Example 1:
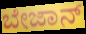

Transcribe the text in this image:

ಬೇಜಾನ್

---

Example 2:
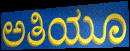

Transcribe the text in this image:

ಅತಿಯೂ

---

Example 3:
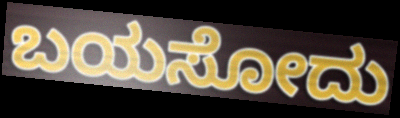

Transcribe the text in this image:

ಬಯಸೋದು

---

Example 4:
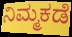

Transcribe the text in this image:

ನಿಮ್ಮಕಡೆ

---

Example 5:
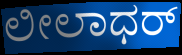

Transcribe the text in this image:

ಲೀಲಾಧರ್